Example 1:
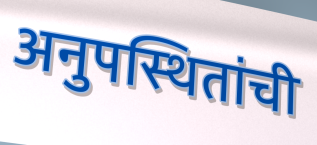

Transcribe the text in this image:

अनुपस्थितांची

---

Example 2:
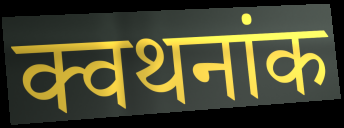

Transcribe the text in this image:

क्वथनांक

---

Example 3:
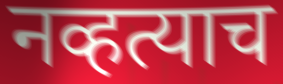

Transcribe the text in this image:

नव्हत्याच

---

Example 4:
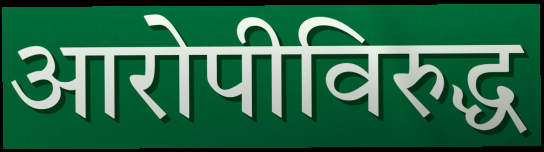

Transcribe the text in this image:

आरोपीविरुद्ध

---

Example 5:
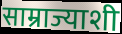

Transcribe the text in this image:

साम्राज्याशी